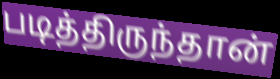
படித்திருந்தான்